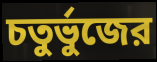
চতুর্ভুজের